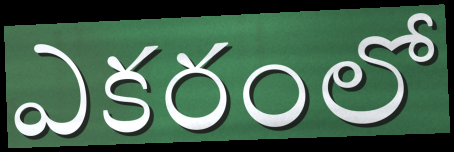
ఎకరంలో